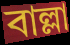
বাল্লা